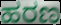
ಹರಣ